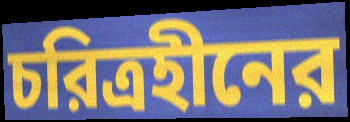
চরিত্রহীনের